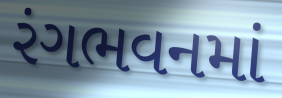
રંગભવનમાં